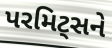
પરમિટ્સને